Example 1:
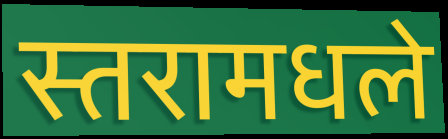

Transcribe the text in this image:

स्तरामधले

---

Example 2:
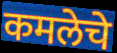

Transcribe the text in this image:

कमलेचे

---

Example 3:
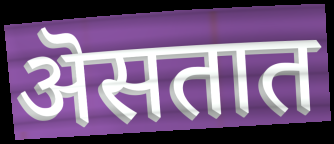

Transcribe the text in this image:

ऄसतात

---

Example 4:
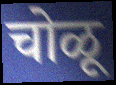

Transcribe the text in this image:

चोळू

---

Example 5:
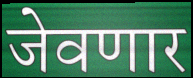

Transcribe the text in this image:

जेवणार